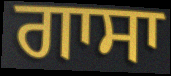
ਗਾਸਾ